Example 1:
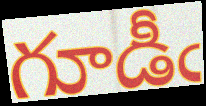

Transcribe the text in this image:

గూడీఁ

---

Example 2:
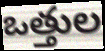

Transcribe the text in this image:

ఒత్తుల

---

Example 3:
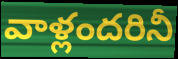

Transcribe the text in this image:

వాళ్లందరినీ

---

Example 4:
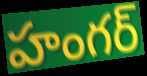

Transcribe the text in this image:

హంగర్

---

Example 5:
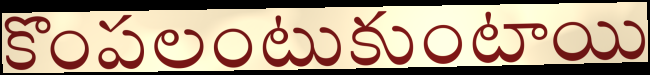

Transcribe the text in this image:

కొంపలంటుకుంటాయి